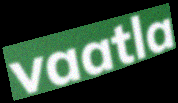
vaatla